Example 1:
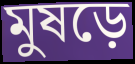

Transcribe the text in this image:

মুষড়ে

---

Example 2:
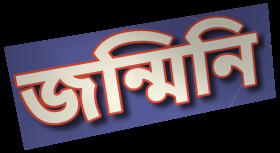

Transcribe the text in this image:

জন্মিনি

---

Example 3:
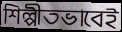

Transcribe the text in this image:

শিল্পীতভাবেই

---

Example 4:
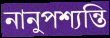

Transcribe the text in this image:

নানুপশ্যন্তি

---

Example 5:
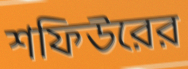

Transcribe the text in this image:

শফিউরের